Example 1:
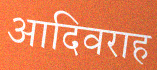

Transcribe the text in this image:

आदिवराह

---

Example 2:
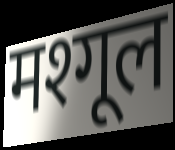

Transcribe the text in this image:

मश्गूल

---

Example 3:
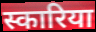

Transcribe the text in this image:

स्कारिया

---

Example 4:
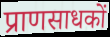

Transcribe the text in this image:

प्राणसाधकों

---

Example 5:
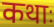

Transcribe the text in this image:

कथाः